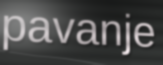
pavanje